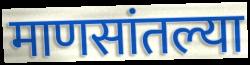
माणसांतल्या